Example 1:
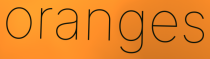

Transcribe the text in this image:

oranges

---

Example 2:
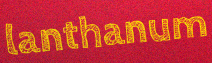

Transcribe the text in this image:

lanthanum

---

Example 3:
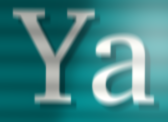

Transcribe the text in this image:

Ya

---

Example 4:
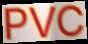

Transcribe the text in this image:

PVC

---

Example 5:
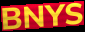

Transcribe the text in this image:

BNYS